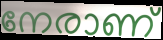
നേരാണ്